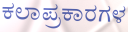
ಕಲಾಪ್ರಕಾರಗಳ